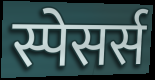
स्पेसर्स